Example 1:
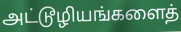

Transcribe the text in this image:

அட்டூழியங்களைத்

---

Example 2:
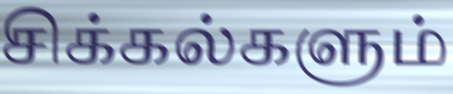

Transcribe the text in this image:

சிக்கல்களும்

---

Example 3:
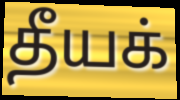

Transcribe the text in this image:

தீயக்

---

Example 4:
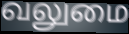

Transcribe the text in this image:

வலுமை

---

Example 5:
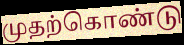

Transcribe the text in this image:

முதற்கொண்டு